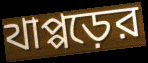
থাপ্পড়ের